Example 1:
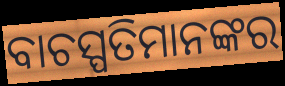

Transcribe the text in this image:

ବାଚସ୍ପତିମାନଙ୍କର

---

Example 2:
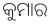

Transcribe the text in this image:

କୁମାର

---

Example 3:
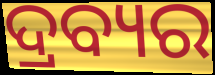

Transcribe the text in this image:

ଦ୍ରବ୍ୟର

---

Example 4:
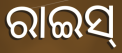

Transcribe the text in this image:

ରାଇସ୍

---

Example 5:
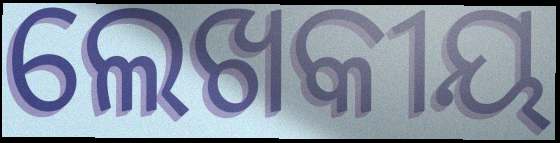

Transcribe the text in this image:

ଲେଖକୀୟ